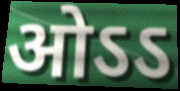
ओऽऽ